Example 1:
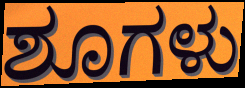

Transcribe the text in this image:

ಶೂಗಳು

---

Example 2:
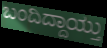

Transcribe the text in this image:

ಬಂದಿದ್ದಾಯ್ತು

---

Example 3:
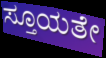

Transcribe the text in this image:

ಸ್ತೂಯತೇ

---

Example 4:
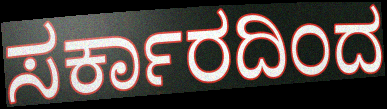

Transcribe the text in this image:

ಸರ್ಕಾರದಿಂದ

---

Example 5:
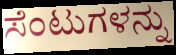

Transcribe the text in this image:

ಸೆಂಟುಗಳನ್ನು